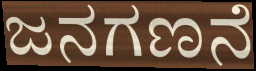
ಜನಗಣನೆ